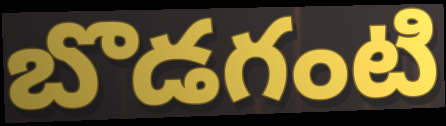
బొడగంటి